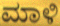
ಮಾಳಿ